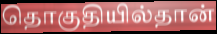
தொகுதியில்தான்